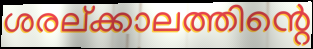
ശരല്ക്കാലത്തിന്റെ